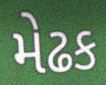
મેઢક